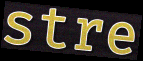
stre